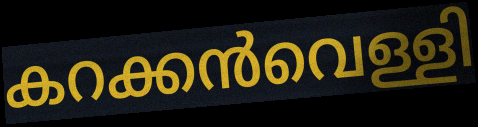
കറക്കൻവെള്ളി